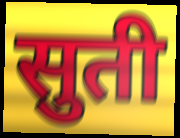
सुती